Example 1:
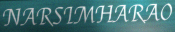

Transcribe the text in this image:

NARSIMHARAO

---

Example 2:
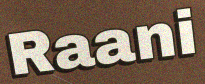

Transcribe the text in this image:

Raani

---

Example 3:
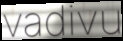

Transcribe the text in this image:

vadivu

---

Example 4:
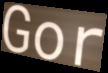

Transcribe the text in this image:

Gor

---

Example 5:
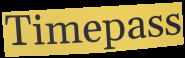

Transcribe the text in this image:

Timepass